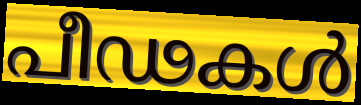
പീഢകൾ